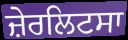
ਜ਼ੇਰਲਿਟਸਾ